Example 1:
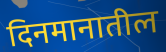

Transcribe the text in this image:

दिनमानातील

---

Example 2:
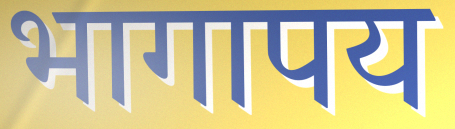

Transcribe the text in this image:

भागापय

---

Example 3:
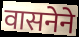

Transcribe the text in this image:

वासनेने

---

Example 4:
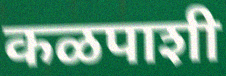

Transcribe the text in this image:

कळपाशी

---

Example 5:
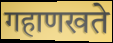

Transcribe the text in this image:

गहाणखते